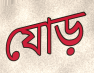
যোড়